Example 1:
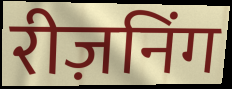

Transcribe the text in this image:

रीज़निंग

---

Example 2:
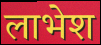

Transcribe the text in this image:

लाभेश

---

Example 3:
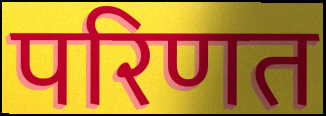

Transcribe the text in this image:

परिणत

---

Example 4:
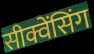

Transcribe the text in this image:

सीक्वेंसिंग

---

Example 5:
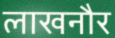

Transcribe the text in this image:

लाखनौर